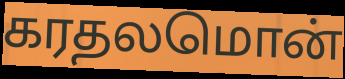
கரதலமொன்